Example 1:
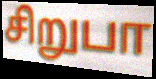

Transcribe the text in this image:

சிறுபா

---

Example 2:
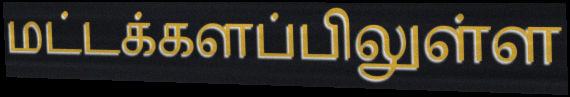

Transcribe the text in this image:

மட்டக்களப்பிலுள்ள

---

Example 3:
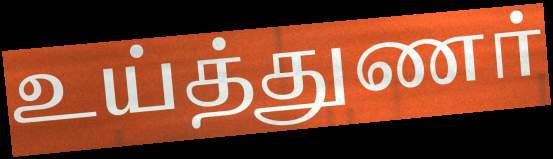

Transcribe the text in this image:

உய்த்துணர்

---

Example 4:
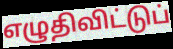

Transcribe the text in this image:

எழுதிவிட்டுப்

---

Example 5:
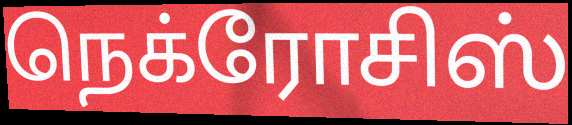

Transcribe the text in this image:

நெக்ரோசிஸ்